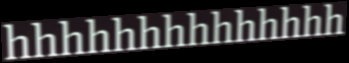
hhhhhhhhhhhhhh